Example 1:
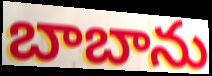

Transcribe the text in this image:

బాబాను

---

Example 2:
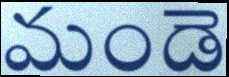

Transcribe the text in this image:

మండె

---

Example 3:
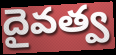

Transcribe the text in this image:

దైవత్వ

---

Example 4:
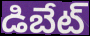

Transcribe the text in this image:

డిబేట్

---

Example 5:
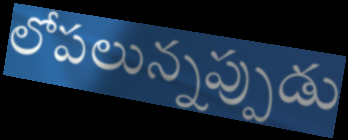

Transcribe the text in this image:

లోపలున్నప్పుడు